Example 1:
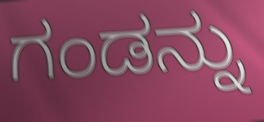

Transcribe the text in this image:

ಗಂಡನ್ನು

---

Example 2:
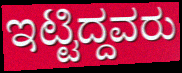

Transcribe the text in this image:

ಇಟ್ಟಿದ್ದವರು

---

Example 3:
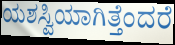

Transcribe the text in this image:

ಯಶಸ್ವಿಯಾಗಿತ್ತೆಂದರೆ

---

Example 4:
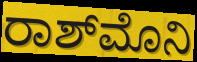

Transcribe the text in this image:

ರಾಶ್‌ಮೊನಿ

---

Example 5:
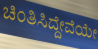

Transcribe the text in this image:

ಚಿಂತಿಸಿದ್ದೇವೆಯೇ